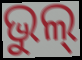
ଭୁଲ୍